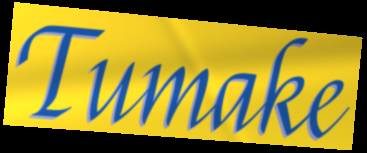
Tumake